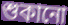
শুকানো